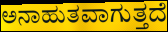
ಅನಾಹುತವಾಗುತ್ತದೆ